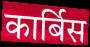
कार्बिस